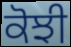
ਕੋਝੀ